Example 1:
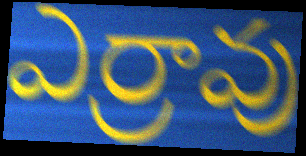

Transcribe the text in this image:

ఎర్రావు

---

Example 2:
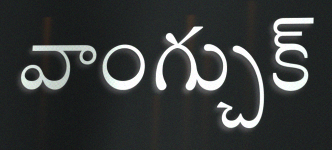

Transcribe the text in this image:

వాంగ్చుక్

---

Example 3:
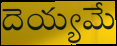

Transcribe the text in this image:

దెయ్యమే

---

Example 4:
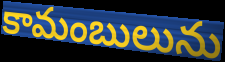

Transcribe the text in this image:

కామంబులును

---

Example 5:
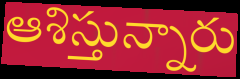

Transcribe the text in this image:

ఆశిస్తున్నారు